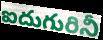
ఐదుగురినీ